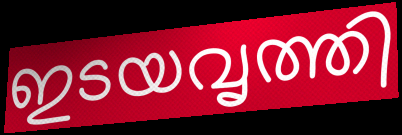
ഇടയവൃത്തി